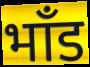
भाँड